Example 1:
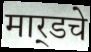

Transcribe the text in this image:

मार्डचे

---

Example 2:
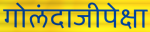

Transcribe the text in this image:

गोलंदाजीपेक्षा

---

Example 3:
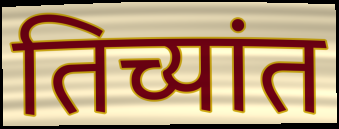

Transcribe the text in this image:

तिच्यांत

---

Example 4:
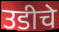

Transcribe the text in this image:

उडीचे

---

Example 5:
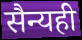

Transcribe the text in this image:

सैन्यही